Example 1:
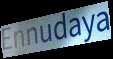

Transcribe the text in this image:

Ennudaya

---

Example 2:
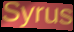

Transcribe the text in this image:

Syrus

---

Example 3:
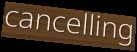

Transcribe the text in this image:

cancelling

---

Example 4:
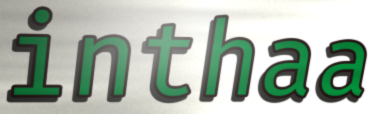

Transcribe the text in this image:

inthaa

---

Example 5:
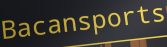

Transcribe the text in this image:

Bacansports